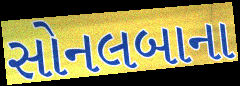
સોનલબાના